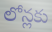
లోన్లకు